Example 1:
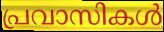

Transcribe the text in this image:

പ്രവാസികൾ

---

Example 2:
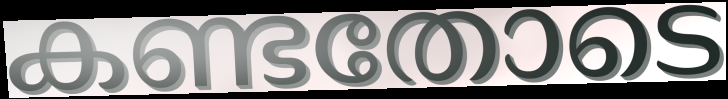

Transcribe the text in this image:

കണ്ടതോടെ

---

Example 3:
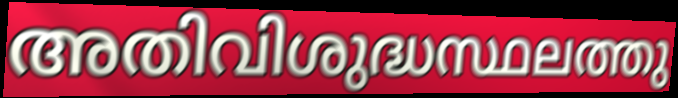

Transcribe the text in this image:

അതിവിശുദ്ധസ്ഥലത്തു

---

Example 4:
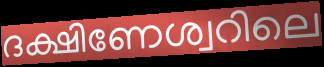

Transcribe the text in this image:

ദക്ഷിണേശ്വറിലെ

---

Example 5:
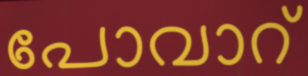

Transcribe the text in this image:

പോവാറ്